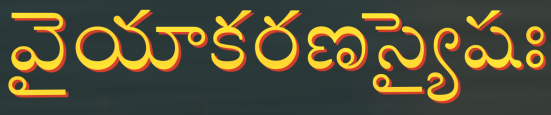
వైయాకరణస్యైషః